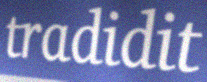
tradidit